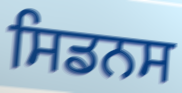
ਸਿਡਨਸ